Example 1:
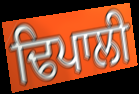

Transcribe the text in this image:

ਢਿਪਾਲੀ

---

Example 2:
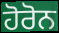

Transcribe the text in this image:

ਹੋਰੋਨ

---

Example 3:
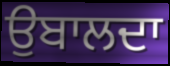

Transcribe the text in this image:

ਉਬਾਲਦਾ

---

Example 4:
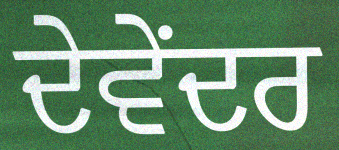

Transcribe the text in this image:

ਦੇਵੇਂਦਰ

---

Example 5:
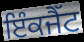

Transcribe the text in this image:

ਇੰਕਜੈੱਟ